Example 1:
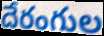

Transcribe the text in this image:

దేరంగుల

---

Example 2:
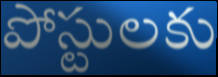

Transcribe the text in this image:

పోస్టులకు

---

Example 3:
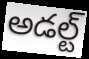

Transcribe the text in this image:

అడల్ట్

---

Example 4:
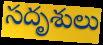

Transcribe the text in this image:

సదృశులు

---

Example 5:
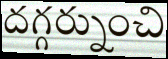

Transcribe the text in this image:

దగ్గర్నుంచి